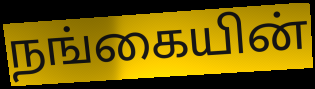
நங்கையின்